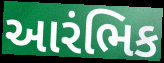
આરંભિક